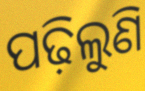
ପଢ଼ିଲୁଣି